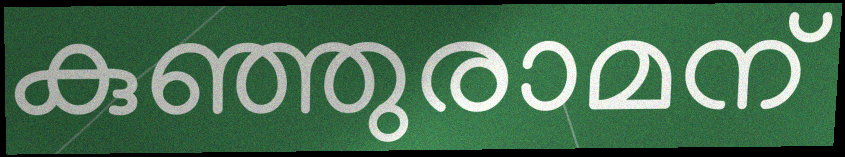
കുഞ്ഞുരാമന്